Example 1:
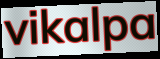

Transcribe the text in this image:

vikalpa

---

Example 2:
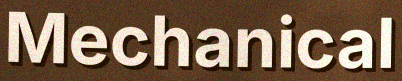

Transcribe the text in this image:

Mechanical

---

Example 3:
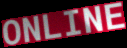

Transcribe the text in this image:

ONLINE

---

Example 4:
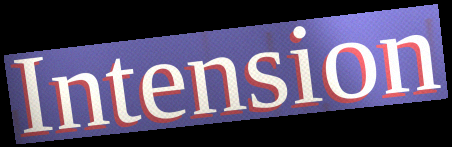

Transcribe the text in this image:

Intension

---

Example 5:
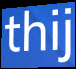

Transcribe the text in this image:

thij